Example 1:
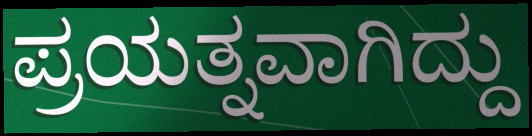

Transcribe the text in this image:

ಪ್ರಯತ್ನವಾಗಿದ್ದು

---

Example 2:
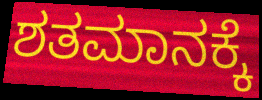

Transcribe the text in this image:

ಶತಮಾನಕ್ಕೆ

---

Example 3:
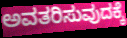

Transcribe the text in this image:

ಅವತರಿಸುವುದಕ್ಕೆ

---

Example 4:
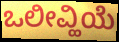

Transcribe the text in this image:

ಒಲೀವ್ಹಿಯೆ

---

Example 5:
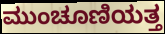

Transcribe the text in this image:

ಮುಂಚೂಣಿಯತ್ತ